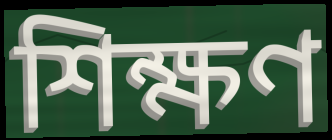
শিক্ষণ